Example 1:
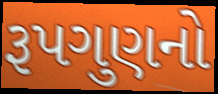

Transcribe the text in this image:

રૂપગુણનો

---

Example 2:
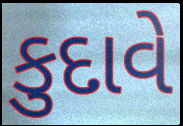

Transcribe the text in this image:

કુદાવે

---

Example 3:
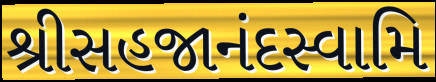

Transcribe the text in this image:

શ્રીસહજાનંદસ્વામિ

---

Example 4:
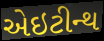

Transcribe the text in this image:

એઇટીન્થ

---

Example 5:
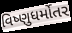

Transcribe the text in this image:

વિષ્ણુધર્મોતર